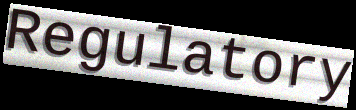
Regulatory